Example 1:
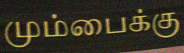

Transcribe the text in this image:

மும்பைக்கு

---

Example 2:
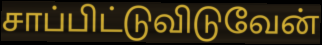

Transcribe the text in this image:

சாப்பிட்டுவிடுவேன்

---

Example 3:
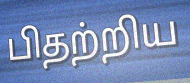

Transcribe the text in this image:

பிதற்றிய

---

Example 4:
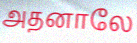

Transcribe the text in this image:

அதனாலே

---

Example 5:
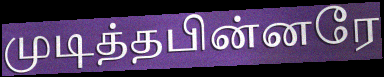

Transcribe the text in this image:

முடித்தபின்னரே